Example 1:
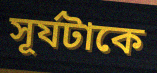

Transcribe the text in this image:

সূর্যটাকে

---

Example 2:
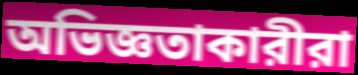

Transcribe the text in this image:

অভিজ্ঞতাকারীরা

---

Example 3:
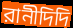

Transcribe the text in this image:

রানীদিদি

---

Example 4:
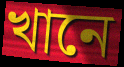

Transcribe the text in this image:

খানে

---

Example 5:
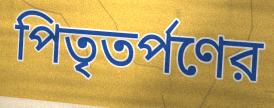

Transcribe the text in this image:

পিতৃতর্পণের